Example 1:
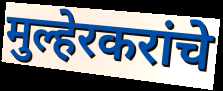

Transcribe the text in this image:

मुल्हेरकरांचे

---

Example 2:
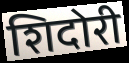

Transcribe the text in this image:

शिदोरी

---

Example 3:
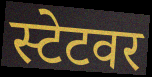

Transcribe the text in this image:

स्टेटवर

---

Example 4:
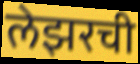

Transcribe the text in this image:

लेझरची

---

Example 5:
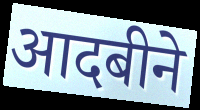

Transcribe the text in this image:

आदबीने